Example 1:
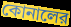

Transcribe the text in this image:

কোনালের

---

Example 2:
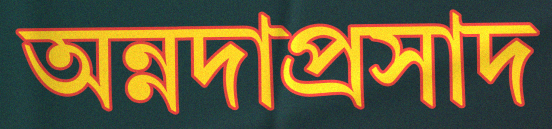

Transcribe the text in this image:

অন্নদাপ্রসাদ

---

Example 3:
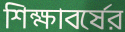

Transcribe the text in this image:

শিক্ষাবর্ষের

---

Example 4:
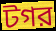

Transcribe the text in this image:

টগর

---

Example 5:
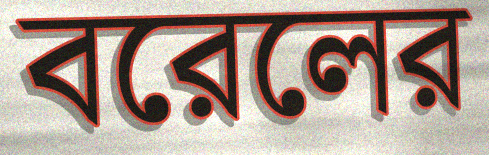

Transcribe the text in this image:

বরেলের